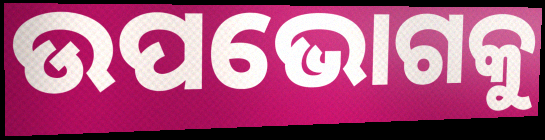
ଉପଭୋଗକୁ